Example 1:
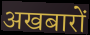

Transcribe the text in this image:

अखबारों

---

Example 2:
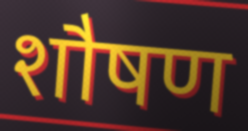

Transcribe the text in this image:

शौषण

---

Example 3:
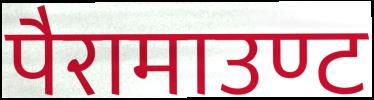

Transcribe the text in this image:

पैरामाउण्ट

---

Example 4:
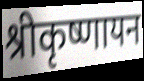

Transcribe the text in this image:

श्रीकृष्णायन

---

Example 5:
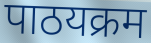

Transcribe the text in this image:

पाठयक्रम